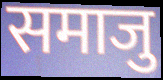
समाजु